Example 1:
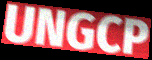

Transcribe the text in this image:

UNGCP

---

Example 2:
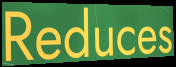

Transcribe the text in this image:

Reduces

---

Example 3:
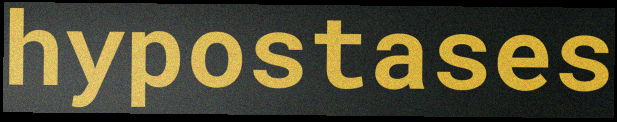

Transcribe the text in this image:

hypostases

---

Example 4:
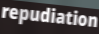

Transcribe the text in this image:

repudiation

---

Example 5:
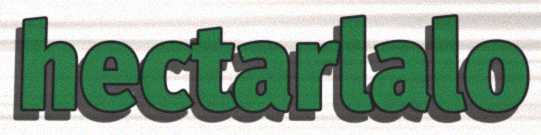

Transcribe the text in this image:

hectarlalo